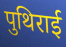
पुथिराई